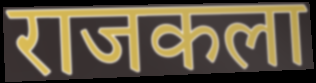
राजकला